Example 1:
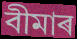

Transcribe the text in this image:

বীমাৰ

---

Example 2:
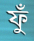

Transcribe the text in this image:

ফুঁ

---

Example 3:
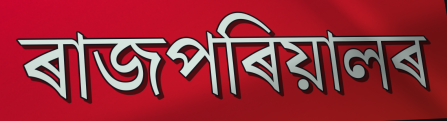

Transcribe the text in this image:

ৰাজপৰিয়ালৰ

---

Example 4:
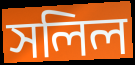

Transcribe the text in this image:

সলিল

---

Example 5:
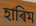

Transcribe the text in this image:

হাৰিম